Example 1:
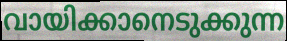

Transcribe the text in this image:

വായിക്കാനെടുക്കുന്ന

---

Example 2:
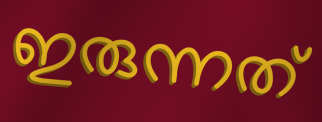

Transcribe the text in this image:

ഇരുന്നത്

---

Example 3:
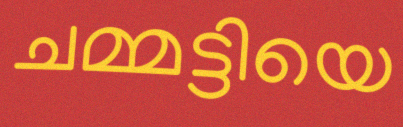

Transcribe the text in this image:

ചമ്മട്ടിയെ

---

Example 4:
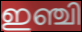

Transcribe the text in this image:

ഇഞ്ചി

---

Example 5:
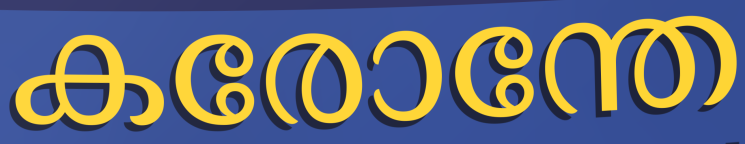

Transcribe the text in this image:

കരോന്തേ